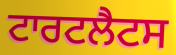
ਟਾਰਟਲੈਟਸ